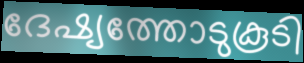
ദേഷ്യത്തോടുകൂടി